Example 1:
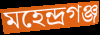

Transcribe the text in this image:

মহেন্দ্রগঞ্জ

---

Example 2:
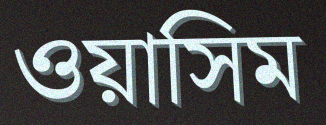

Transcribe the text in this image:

ওয়াসিম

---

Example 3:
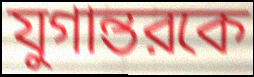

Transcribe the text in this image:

যুগান্তরকে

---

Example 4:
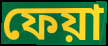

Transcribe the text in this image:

ফেয়া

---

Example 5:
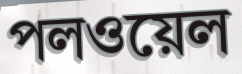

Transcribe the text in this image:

পলওয়েল